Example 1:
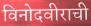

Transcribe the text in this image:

विनोदवीराची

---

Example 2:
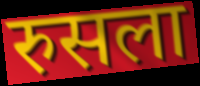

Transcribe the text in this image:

रुसला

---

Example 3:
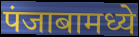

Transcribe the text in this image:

पंजाबामध्ये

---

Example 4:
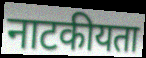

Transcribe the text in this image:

नाटकीयता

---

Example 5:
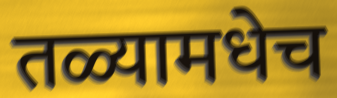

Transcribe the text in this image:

तळ्यामधेच